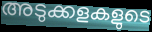
അടുക്കളകളുടെ